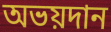
অভয়দান